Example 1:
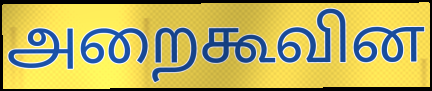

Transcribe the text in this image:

அறைகூவின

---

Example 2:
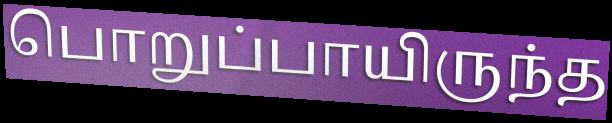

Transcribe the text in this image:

பொறுப்பாயிருந்த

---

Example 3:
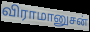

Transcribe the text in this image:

விராமானுசன்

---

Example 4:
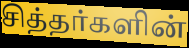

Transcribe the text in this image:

சித்தர்களின்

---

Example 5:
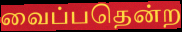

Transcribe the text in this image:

வைப்பதென்ற